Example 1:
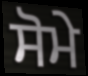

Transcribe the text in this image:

ਸੋਮੇ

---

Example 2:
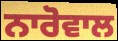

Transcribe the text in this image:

ਨਾਰੋਵਾਲ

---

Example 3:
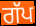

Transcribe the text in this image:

ਗੱਪ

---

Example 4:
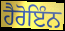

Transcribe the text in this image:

ਹੈਰੋਇੰਨ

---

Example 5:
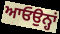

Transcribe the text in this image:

ਆਓਉਨ੍ਹਾਂ